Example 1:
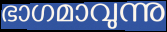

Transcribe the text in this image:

ഭാഗമാവുന്നു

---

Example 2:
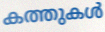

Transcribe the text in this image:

കത്തുകൾ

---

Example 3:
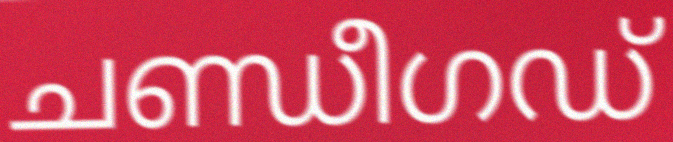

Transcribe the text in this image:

ചണ്ഡീഗഡ്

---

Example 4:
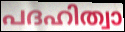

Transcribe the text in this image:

പദഹിത്വാ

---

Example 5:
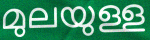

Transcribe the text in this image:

മുലയുള്ള